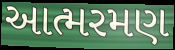
આત્મરમણ